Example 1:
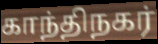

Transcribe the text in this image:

காந்திநகர்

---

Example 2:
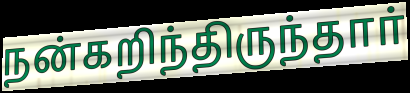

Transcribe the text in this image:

நன்கறிந்திருந்தார்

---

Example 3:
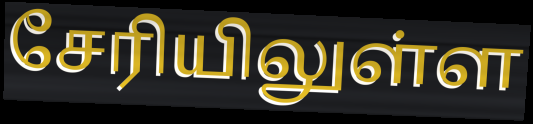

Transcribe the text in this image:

சேரியிலுள்ள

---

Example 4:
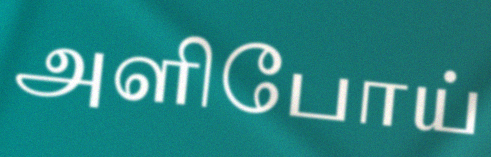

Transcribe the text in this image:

அளிபோய்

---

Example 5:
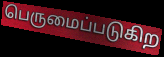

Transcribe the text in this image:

பெருமைப்படுகிற